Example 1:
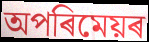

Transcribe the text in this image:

অপৰিমেয়ৰ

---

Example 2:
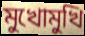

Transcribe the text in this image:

মুখোমুখি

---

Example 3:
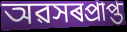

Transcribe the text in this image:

অৱসৰপ্ৰাপ্ত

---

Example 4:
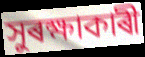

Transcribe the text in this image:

সুৰক্ষাকাৰী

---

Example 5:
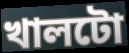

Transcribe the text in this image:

খালটো